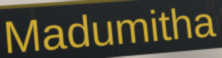
Madumitha